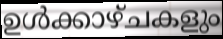
ഉൾക്കാഴ്ചകളും